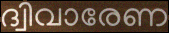
ദ്വിവാരേണ